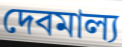
দেবমাল্য